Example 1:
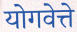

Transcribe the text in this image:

योगवेत्ते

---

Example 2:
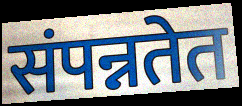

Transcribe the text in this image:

संपन्नतेत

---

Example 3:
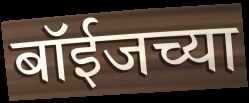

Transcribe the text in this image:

बॉईजच्या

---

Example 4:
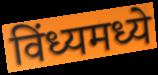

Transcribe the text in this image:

विंध्यमध्ये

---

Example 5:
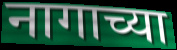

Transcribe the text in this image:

नागाच्या